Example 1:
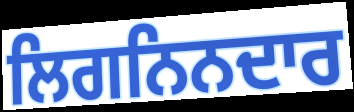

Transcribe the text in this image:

ਲਿਗਨਿਨਦਾਰ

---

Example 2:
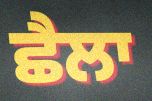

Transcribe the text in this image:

ਛੈਲਾ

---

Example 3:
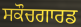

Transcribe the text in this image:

ਸਕੌਚਗਾਰਡ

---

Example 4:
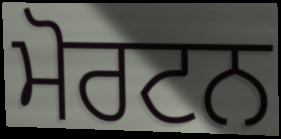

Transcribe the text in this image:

ਮੋਰਟਨ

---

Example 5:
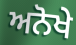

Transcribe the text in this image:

ਅਨੋਖੇ